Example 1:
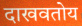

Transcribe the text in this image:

दाखवतोय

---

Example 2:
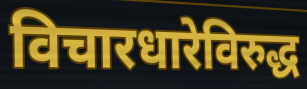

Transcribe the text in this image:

विचारधारेविरुद्ध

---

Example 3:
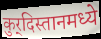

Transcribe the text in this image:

कुर्दिस्तानमध्ये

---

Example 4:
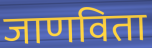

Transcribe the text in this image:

जाणविता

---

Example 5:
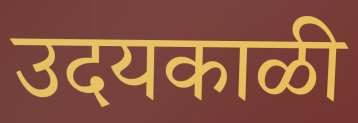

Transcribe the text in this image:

उदयकाळी